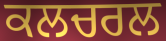
ਕਲਚਰਲ